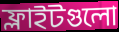
ফ্লাইটগুলো